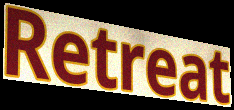
Retreat